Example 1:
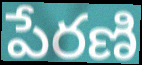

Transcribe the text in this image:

పేరణి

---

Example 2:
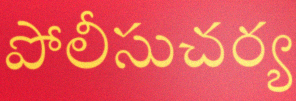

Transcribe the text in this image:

పోలీసుచర్య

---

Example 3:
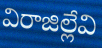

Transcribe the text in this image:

విరాజిల్లేవి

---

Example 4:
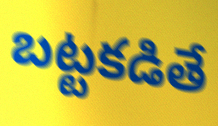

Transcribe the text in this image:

బట్టకడితే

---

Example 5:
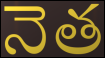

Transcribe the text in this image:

నెత